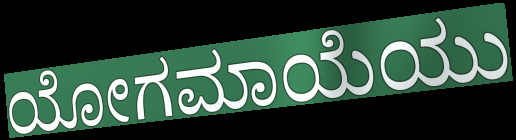
ಯೋಗಮಾಯೆಯು